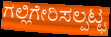
ಗಲ್ಲಿಗೇರಿಸಲ್ಪಟ್ಟ